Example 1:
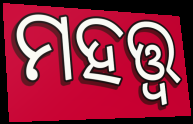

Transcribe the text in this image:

ମହତ୍ତ୍ବ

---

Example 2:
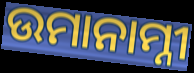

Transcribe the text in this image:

ଉମାନାମ୍ନୀ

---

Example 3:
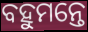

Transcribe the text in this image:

ବହୁମନ୍ତେ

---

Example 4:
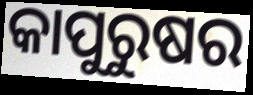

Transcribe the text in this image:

କାପୁରୁଷର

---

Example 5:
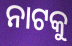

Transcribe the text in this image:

ନାଟକୁ